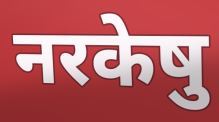
नरकेषु